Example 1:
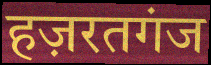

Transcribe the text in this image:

हज़रतगंज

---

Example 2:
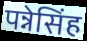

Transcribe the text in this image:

पन्नेसिंह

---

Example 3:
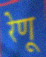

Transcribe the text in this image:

रेणू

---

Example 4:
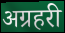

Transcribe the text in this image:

अग्रहरी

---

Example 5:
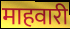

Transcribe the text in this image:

माहवारी